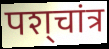
पश्चांत्र